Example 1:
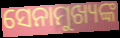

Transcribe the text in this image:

ସେନାମୁଖ୍ୟଙ୍କ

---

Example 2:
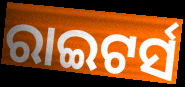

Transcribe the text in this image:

ରାଇଟର୍ସ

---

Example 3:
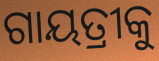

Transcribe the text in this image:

ଗାୟତ୍ରୀକୁ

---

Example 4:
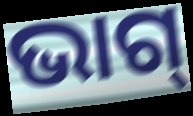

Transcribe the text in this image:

ଭାଗ୍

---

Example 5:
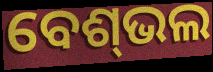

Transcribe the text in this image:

ବେଶ୍‌ଭଲ